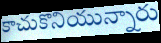
కాచుకొనియున్నారు